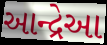
આન્દ્રેઆ